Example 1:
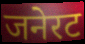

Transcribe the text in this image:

जनेरट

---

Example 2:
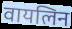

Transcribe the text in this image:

वायलिन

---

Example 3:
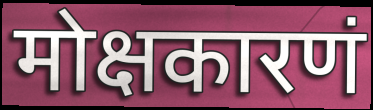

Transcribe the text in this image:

मोक्षकारणं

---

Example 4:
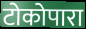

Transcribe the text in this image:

टोकोपारा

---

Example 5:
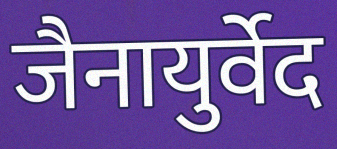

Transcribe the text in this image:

जैनायुर्वेद